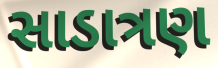
સાડાત્રણ